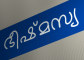
ഭീഷ്മസ്യ